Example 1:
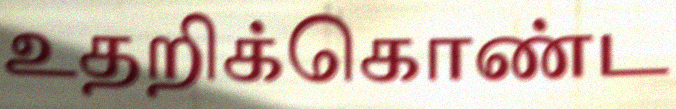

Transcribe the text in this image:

உதறிக்கொண்ட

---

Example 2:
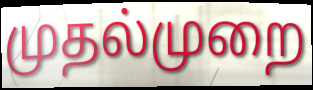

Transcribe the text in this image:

முதல்முறை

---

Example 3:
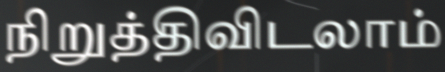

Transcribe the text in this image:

நிறுத்திவிடலாம்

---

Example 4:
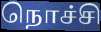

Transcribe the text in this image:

நொச்சி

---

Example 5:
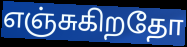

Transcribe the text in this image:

எஞ்சுகிறதோ